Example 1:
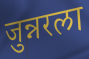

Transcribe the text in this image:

जुन्नरला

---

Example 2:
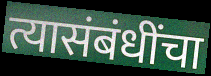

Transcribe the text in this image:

त्यासंबंधींचा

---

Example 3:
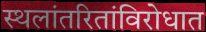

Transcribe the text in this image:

स्थलांतरितांविरोधात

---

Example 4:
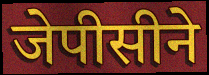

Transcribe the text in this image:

जेपीसीने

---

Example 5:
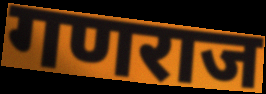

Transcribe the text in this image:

गणराज